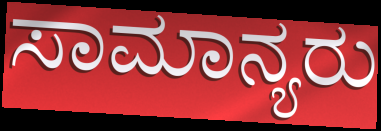
ಸಾಮಾನ್ಯರು